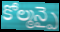
కోల్మన్పై